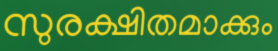
സുരക്ഷിതമാക്കും